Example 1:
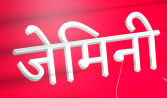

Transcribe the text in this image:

जेमिनी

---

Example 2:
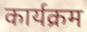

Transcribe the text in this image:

कार्यक्रम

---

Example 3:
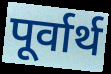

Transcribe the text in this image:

पूर्वार्थ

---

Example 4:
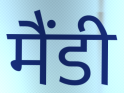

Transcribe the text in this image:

मैंडी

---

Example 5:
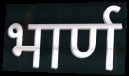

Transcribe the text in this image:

भार्ण